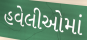
હવેલીઓમાં